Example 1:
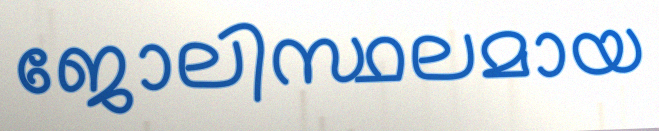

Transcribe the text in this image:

ജോലിസ്ഥലമായ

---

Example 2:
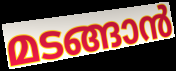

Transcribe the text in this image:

മടങ്ങാൻ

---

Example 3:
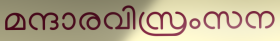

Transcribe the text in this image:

മന്ദാരവിസ്രംസന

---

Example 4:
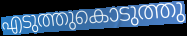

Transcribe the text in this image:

എടുത്തുകൊടുത്തു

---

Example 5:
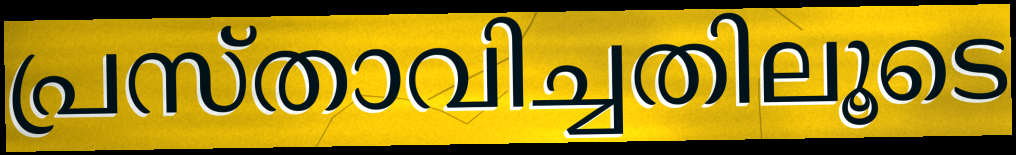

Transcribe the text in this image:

പ്രസ്താവിച്ചതിലൂടെ